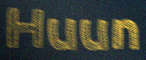
Huun